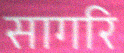
सागरि